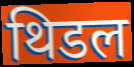
थिडल